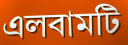
এলবামটি